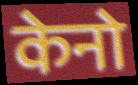
केनो